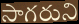
సాగరుని